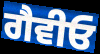
ਗੈਵੀਓ